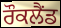
ਰੌਕਲੈਂਡ